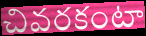
చివరకంటా